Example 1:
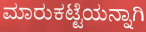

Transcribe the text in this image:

ಮಾರುಕಟ್ಟೆಯನ್ನಾಗಿ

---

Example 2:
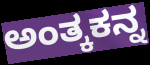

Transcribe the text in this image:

ಅಂತ್ಕಕನ್ನ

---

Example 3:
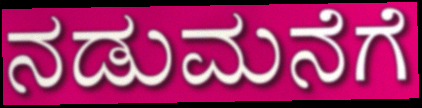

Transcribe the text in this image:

ನಡುಮನೆಗೆ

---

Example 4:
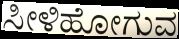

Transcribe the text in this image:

ಸೀಳಿಹೋಗುವ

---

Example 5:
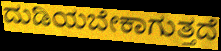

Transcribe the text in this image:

ದುಡಿಯಬೇಕಾಗುತ್ತದೆ